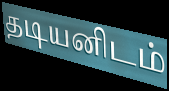
தடியனிடம்